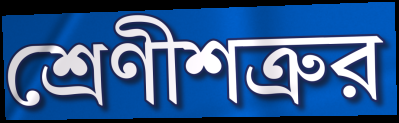
শ্রেণীশত্রুর